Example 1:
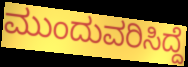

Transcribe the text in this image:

ಮುಂದುವರಿಸಿದ್ದೆ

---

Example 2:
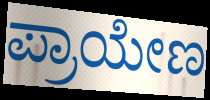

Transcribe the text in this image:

ಪ್ರಾಯೇಣ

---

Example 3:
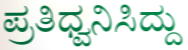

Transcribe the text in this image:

ಪ್ರತಿಧ್ವನಿಸಿದ್ದು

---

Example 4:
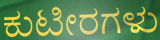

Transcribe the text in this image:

ಕುಟೀರಗಳು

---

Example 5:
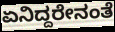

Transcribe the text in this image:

ಏನಿದ್ದರೇನಂತೆ